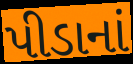
પીડાનાં